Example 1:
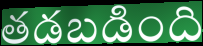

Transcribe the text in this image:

తడబడింది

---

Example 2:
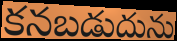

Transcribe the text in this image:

కనబడుదును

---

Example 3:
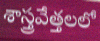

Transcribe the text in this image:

శాస్త్రవేత్తలలో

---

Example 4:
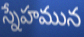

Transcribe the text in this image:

స్నేహమున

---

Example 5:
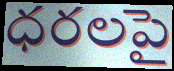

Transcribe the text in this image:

ధరలపై